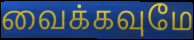
வைக்கவுமே